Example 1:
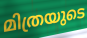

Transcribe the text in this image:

മിത്രയുടെ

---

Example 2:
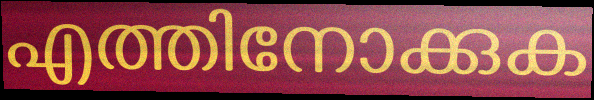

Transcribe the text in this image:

എത്തിനോക്കുക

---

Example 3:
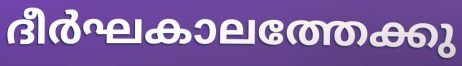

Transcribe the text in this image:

ദീർഘകാലത്തേക്കു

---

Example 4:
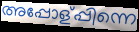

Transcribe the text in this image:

അപ്പോള്പ്പിന്നെ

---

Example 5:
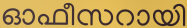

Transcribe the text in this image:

ഓഫീസറായി